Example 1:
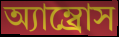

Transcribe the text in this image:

অ্যাম্ব্রোস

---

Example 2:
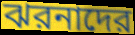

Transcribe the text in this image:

ঝরনাদের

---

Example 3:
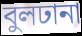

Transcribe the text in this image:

বুলঢানা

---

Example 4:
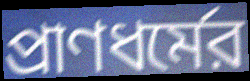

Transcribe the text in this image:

প্রাণধর্মের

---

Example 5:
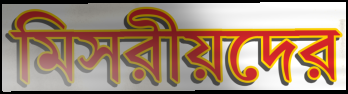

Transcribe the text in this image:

মিসরীয়দের